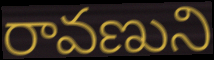
రావణుని